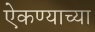
ऐकण्याच्या